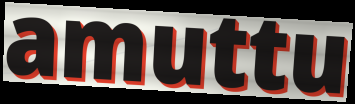
amuttu